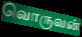
வொருவன்